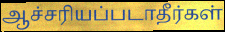
ஆச்சரியப்படாதீர்கள்